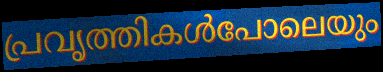
പ്രവൃത്തികൾപോലെയും